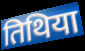
तिथिया